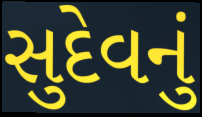
સુદેવનું